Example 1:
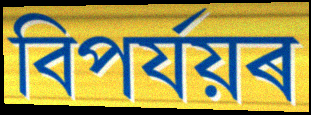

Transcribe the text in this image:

বিপৰ্যয়ৰ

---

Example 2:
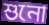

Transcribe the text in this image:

শুনো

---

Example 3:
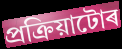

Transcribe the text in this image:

প্ৰক্ৰিয়াটোৰ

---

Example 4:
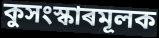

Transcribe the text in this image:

কুসংস্কাৰমূলক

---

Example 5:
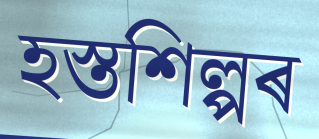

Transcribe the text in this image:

হস্তশিল্পৰ